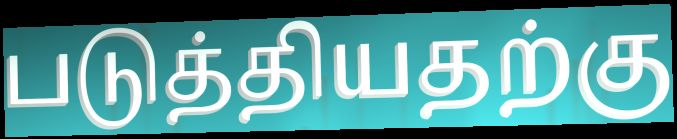
படுத்தியதற்கு